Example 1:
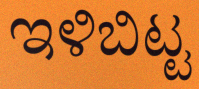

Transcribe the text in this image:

ಇಳಿಬಿಟ್ಟ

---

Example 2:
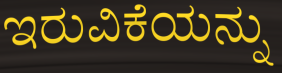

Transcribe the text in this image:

ಇರುವಿಕೆಯನ್ನು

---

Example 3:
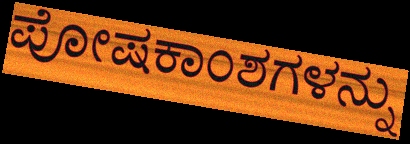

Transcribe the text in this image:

ಪೋಷಕಾಂಶಗಳನ್ನು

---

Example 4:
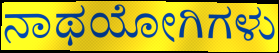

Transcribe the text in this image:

ನಾಥಯೋಗಿಗಳು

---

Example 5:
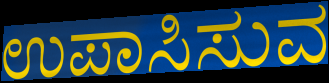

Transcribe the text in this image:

ಉಪಾಸಿಸುವ